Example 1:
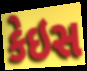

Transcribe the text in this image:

કેઇસ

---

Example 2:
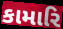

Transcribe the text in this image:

કામારિ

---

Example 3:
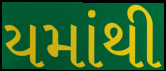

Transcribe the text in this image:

યમાંથી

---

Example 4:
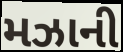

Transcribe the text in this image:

મઝાની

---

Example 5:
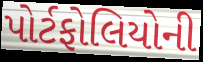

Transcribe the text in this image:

પોર્ટફોલિયોની